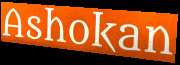
Ashokan